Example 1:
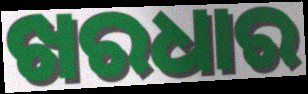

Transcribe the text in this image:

ଖରଧାର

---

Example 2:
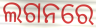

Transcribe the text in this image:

ଲଗନରେ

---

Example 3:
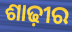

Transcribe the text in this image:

ଶାଢ଼ୀର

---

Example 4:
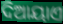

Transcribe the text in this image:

ଦିଆୟାଏ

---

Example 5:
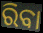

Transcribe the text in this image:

ରିବା